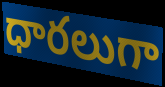
ధారలుగా